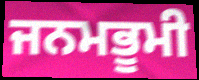
ਜਨਮਭੂਮੀ